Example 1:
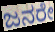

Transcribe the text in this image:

ಜನರೇ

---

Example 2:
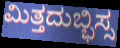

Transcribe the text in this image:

ಮಿತ್ತದುಬ್ಭಿಸ್ಸ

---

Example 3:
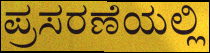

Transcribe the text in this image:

ಪ್ರಸರಣೆಯಲ್ಲಿ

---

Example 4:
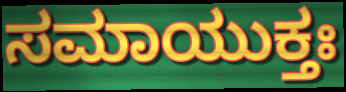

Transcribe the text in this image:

ಸಮಾಯುಕ್ತಃ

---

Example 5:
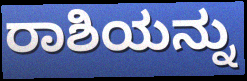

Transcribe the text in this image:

ರಾಶಿಯನ್ನು